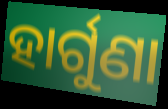
ହାର୍ଗୁଣା